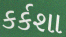
કર્કશા